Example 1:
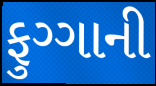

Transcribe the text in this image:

ફુગ્ગાની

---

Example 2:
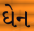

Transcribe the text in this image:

ઘેન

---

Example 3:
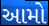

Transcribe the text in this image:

આમો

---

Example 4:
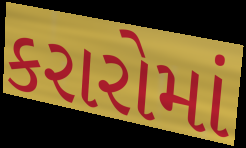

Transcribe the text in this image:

કરારોમાં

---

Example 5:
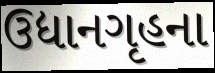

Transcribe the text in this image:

ઉદ્યાનગૃહના